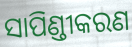
ସାପିଣ୍ଡୀକରଣ